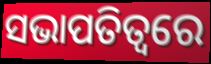
ସଭାପତିତ୍ଵରେ